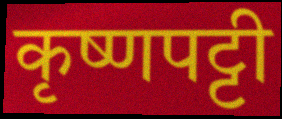
कृष्णपट्टी